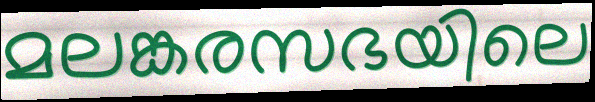
മലങ്കരസഭയിലെ